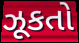
ઝૂકતો